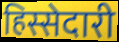
हिस्‍सेदारी